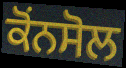
ਕੋਂਨਸੋਲ